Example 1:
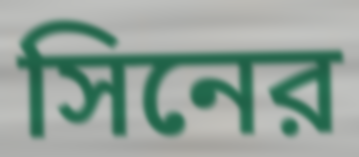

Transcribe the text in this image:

সিনের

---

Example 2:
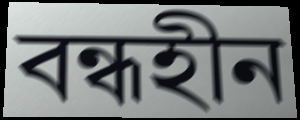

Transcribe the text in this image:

বন্ধহীন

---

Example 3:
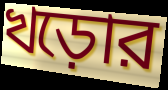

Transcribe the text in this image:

খড়োর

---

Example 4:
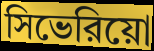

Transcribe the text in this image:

সিভেরিয়ো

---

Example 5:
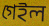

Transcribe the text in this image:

গেইল